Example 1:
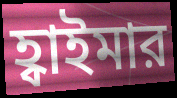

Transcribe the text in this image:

হ্বাইমার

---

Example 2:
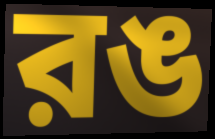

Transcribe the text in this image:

রঙ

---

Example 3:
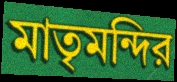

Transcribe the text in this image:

মাতৃমন্দির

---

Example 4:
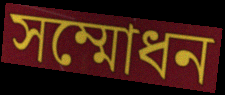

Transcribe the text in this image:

সম্মোধন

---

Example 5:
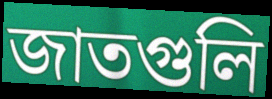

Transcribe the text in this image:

জাতগুলি